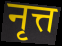
नृत्त